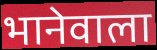
भानेवाला